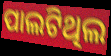
ପାଲଟିଥିଲ